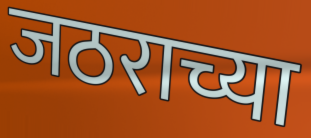
जठराच्या